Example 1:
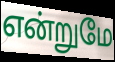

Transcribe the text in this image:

என்றுமே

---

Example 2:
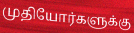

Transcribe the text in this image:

முதியோர்களுக்கு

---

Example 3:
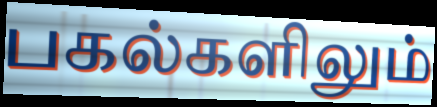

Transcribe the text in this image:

பகல்களிலும்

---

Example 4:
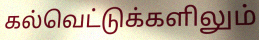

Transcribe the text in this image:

கல்வெட்டுக்களிலும்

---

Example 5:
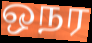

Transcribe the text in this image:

ஒநர